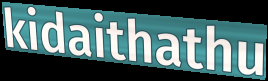
kidaithathu